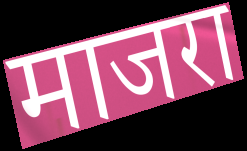
माजरा